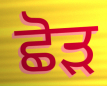
ਛੋੜ